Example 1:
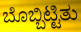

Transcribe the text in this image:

ಬೊಬ್ಬಿಟ್ಟಿತು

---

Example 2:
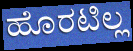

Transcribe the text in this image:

ಹೊರಟಿಲ್ಲ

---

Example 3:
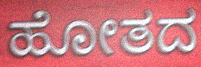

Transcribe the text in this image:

ಹೋತದ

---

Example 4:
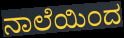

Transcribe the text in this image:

ನಾಲೆಯಿಂದ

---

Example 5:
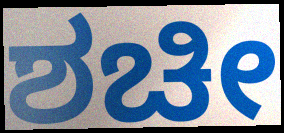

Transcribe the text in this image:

ಶಚೀ